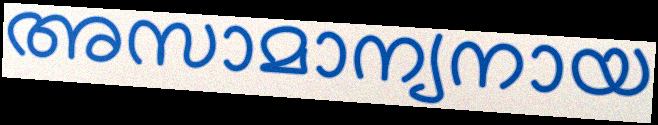
അസാമാന്യനായ